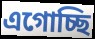
এগোচ্ছি